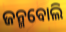
ଜନ୍ମବୋଲି